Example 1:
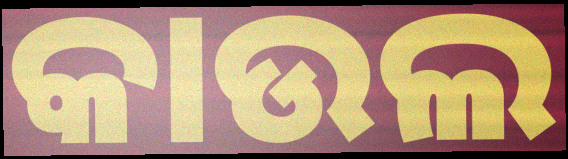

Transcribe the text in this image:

କାଉଲ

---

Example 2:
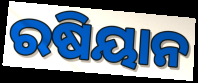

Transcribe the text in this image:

ରଷିୟାନ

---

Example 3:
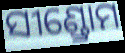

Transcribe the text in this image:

ସୀଣ୍ଡ୍ରୋମ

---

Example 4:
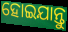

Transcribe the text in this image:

ହୋଇଯାନ୍ତୁ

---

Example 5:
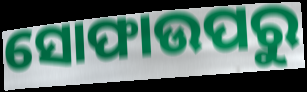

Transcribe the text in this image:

ସୋଫାଉପରୁ